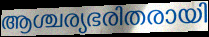
ആശ്ചര്യഭരിതരായി